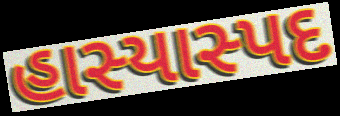
હાસ્યાસ્પદ